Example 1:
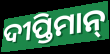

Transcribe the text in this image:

ଦୀପ୍ତିମାନ୍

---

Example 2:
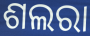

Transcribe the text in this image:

ଶଲରା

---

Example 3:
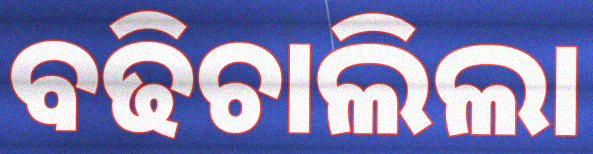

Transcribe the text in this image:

ବଢିଚାଲିଲା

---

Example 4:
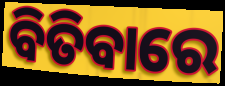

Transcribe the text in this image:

ବିତିବାରେ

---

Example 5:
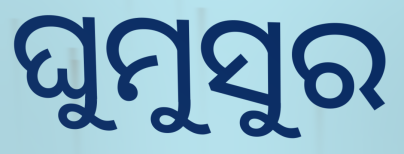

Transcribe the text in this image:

ଘୁମୁସୁର